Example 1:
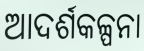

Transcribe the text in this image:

ଆଦର୍ଶକଳ୍ପନା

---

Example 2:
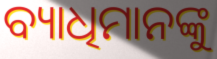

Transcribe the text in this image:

ବ୍ୟାଧିମାନଙ୍କୁ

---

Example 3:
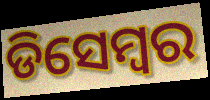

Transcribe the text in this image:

ଡିସେମ୍ୱର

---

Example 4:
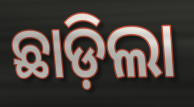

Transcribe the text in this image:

ଛାଡ଼ିଲା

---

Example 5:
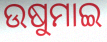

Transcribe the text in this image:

ଉଷୁମାଇ